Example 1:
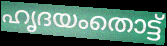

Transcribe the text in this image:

ഹൃദയംതൊട്ട്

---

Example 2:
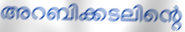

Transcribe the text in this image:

അറബിക്കടലിന്റെ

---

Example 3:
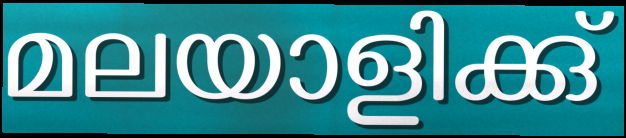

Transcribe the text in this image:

മലയാളിക്കു്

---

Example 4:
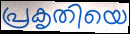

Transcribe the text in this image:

പ്രകൃതിയെ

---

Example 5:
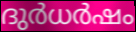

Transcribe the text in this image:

ദുർധർഷം